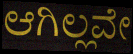
ಆಗಿಲ್ಲವೇ